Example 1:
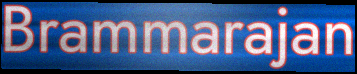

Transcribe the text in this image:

Brammarajan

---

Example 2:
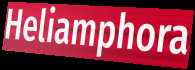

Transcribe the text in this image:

Heliamphora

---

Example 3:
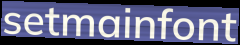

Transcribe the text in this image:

setmainfont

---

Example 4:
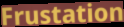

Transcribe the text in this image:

Frustation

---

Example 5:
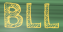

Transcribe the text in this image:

BLL